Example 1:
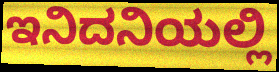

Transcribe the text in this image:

ಇನಿದನಿಯಲ್ಲಿ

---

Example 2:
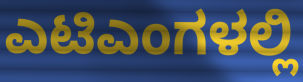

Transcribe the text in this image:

ಎಟಿಎಂಗಳಲ್ಲಿ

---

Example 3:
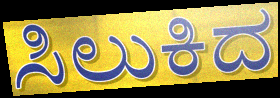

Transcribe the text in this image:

ಸಿಲುಕಿದ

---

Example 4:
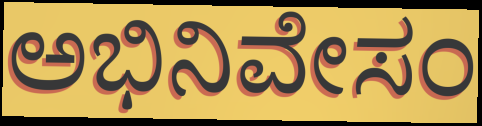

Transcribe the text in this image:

ಅಭಿನಿವೇಸಂ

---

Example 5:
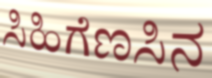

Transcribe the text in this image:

ಸಿಹಿಗೆಣಸಿನ